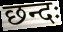
छन्दः